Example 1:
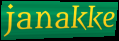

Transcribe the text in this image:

janakke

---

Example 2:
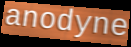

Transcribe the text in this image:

anodyne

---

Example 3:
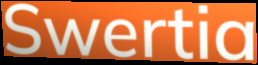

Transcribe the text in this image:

Swertia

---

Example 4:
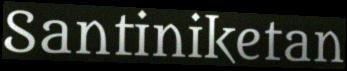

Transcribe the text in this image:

Santiniketan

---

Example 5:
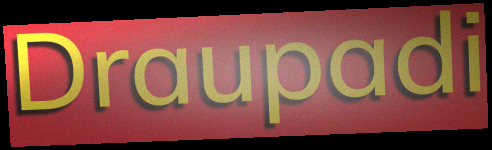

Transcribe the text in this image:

Draupadi